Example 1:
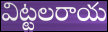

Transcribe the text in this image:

విట్టలరాయ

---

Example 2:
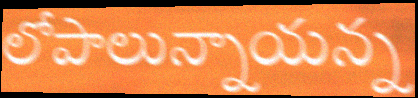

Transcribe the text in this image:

లోపాలున్నాయన్న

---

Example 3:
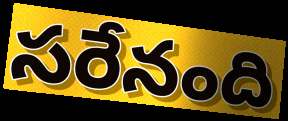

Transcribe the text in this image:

సరేనంది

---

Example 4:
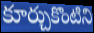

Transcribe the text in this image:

కూర్చుకొంటిని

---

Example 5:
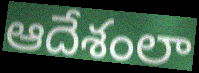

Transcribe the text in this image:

ఆదేశంలా